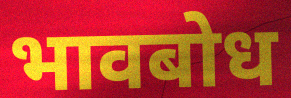
भावबोध